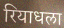
रियाधला